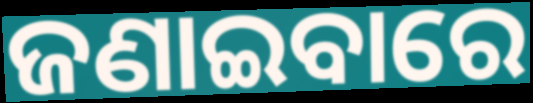
ଜଣାଇବାରେ